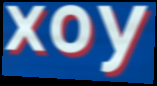
xoy